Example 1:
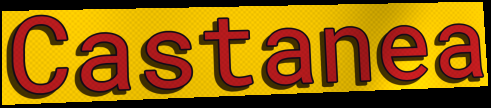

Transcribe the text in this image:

Castanea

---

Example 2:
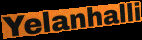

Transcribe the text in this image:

Yelanhalli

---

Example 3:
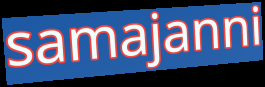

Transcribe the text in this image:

samajanni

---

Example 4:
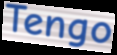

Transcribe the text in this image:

Tengo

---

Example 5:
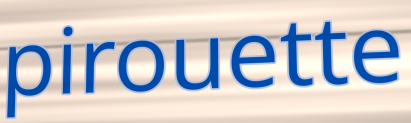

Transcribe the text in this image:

pirouette